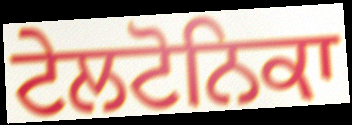
ਟੇਲਟੋਨਿਕਾ